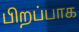
பிறப்பாக